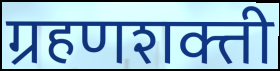
ग्रहणशक्ती